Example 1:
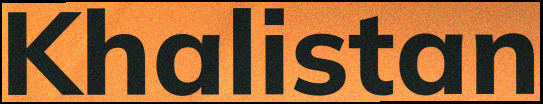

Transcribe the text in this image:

Khalistan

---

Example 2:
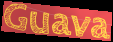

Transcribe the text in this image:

Guava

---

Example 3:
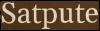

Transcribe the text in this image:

Satpute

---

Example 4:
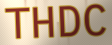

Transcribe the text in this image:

THDC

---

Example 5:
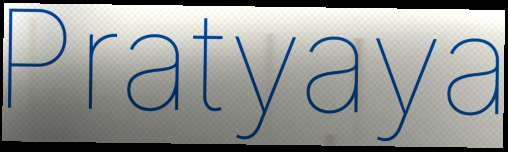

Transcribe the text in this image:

Pratyaya